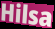
Hilsa